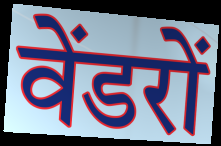
वेंडरों